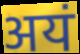
अयं